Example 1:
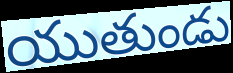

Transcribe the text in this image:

యుతుండు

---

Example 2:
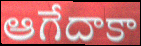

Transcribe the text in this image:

ఆగేదాకా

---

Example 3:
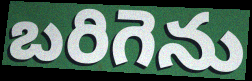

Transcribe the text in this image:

బరిగెను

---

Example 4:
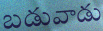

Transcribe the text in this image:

బడువాడు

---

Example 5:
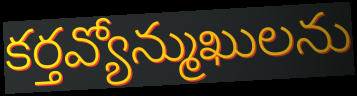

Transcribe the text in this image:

కర్తవ్యోన్ముఖులను